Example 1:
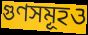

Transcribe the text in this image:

গুণসমূহও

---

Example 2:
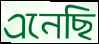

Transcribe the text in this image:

এনেছি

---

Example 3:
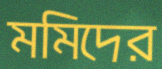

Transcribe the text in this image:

মমিদের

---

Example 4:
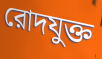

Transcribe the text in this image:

রোদযুক্ত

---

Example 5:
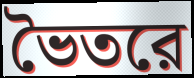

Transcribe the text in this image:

ভৈতরে